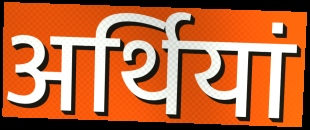
अर्थियां